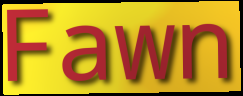
Fawn